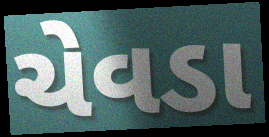
ચેવડા